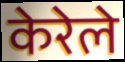
केरेले